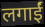
लगाईं